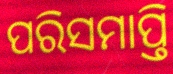
ପରିସମାପ୍ତି